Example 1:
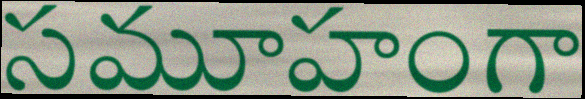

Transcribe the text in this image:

సమూహంగా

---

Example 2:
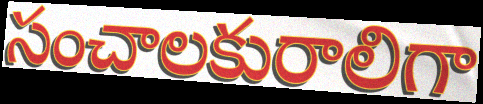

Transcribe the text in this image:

సంచాలకురాలిగా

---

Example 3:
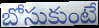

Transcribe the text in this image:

బోసుకుంటే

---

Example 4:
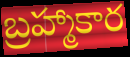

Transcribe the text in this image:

బ్రహ్మాకార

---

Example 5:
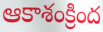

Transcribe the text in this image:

ఆకాశంక్రింద